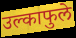
उल्काफुले